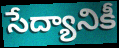
సేద్యానికీ